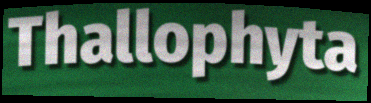
Thallophyta